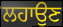
ਲਹਾਉਣ